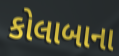
કોલાબાના